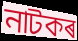
নাটকৰ